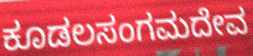
ಕೂಡಲಸಂಗಮದೇವ